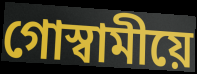
গোস্বামীয়ে